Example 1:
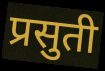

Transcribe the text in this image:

प्रसुती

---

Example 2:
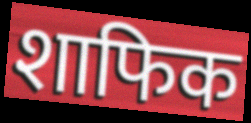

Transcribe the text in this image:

शाफिक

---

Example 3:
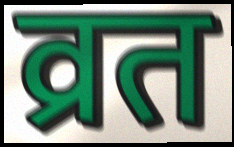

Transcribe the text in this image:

व्रत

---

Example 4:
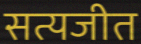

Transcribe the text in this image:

सत्यजीत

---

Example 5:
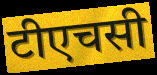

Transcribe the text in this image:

टीएचसी